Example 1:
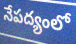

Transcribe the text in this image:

నేపద్యంలో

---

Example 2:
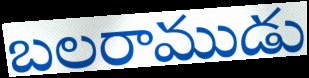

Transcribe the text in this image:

బలరాముడు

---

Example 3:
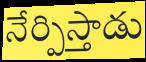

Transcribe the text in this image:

నేర్పిస్తాడు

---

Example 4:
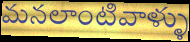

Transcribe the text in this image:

మనలాంటివాళ్ళు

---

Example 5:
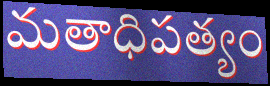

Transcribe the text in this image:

మతాధిపత్యం